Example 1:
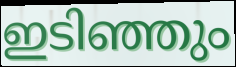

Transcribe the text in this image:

ഇടിഞ്ഞും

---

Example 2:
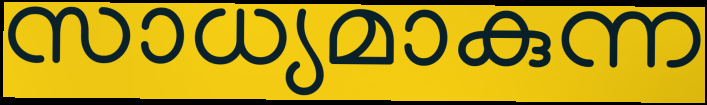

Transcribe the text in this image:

സാധ്യമാകുന്ന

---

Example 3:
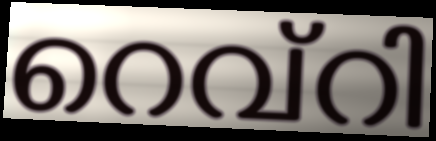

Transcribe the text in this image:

റെവ്റി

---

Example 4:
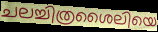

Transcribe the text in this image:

ചലച്ചിത്രശൈലിയെ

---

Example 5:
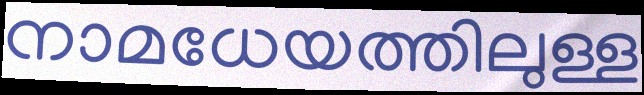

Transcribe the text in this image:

നാമധേയത്തിലുള്ള